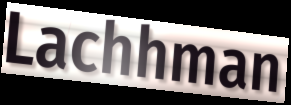
Lachhman